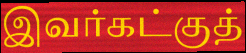
இவர்கட்குத்